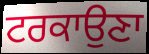
ਟਰਕਾਉਣਾ